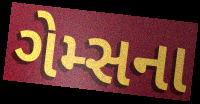
ગેમ્સના